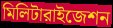
মিলিটারাইজেশন